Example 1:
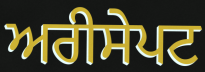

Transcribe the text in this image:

ਅਰੀਸੇਪਟ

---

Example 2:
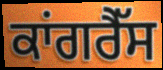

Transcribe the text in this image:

ਕਾਂਗਰੈੱਸ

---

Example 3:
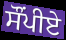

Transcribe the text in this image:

ਸੌਂਪੀਏ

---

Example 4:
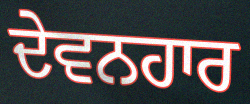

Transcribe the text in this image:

ਦੇਵਨਹਾਰ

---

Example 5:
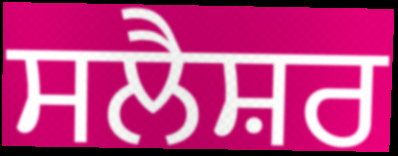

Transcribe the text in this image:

ਸਲੈਸ਼ਰ